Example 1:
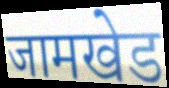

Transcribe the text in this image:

जामखेड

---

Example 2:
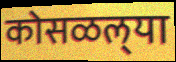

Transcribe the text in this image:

कोसळल्या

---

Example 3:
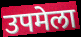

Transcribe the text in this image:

उपमेला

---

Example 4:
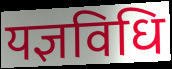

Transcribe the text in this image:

यज्ञविधि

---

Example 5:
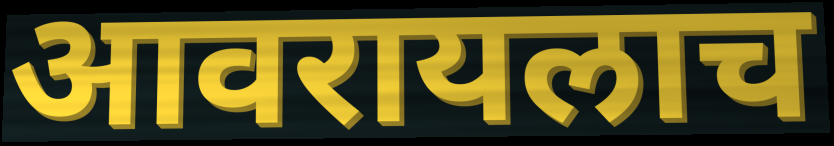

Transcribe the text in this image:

आवरायलाच